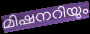
മിഷനറിയും